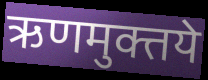
ऋणमुक्तये